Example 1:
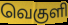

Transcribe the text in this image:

வெகுளி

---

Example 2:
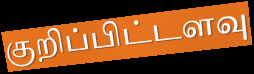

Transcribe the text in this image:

குறிப்பிட்டளவு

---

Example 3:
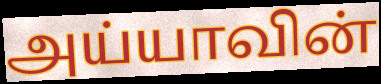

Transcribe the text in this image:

அய்யாவின்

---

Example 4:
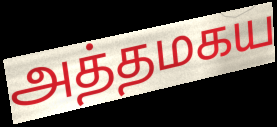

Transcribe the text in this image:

அத்தமகய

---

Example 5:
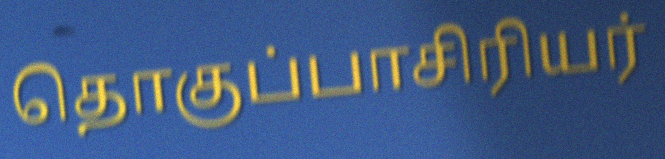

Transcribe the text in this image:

தொகுப்பாசிரியர்